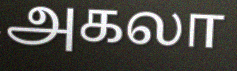
அகலா